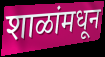
शाळांमधून